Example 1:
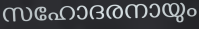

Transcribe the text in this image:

സഹോദരനായും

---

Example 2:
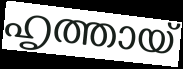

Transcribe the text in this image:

ഹൃത്തായ്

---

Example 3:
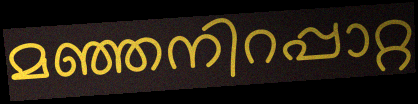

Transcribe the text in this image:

മഞ്ഞനിറപ്പാറ്റ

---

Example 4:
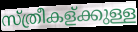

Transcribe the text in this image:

സ്ത്രീകള്ക്കുള്ള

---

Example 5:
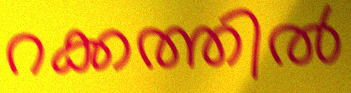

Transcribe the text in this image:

റക്കത്തിൽ